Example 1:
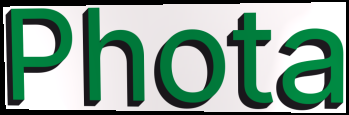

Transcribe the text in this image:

Phota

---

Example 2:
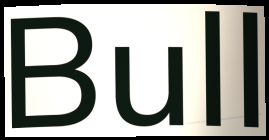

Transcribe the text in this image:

Bull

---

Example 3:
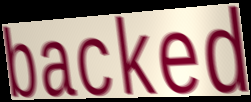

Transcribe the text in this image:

backed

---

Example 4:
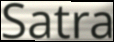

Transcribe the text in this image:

Satra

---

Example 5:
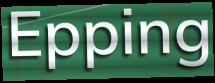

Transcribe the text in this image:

Epping